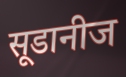
सूडानीज